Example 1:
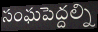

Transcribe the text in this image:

సంఘపెద్దల్ని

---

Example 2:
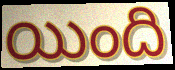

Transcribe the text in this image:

యింది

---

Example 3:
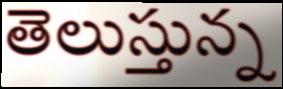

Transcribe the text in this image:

తెలుస్తున్న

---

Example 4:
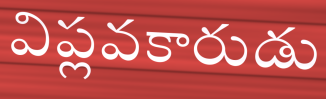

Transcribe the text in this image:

విప్లవకారుడు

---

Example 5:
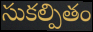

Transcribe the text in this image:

సుకల్పితం